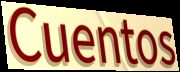
Cuentos